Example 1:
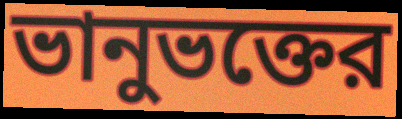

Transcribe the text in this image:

ভানুভক্তের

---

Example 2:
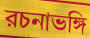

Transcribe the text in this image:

রচনাভঙ্গি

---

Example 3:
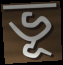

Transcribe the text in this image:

ভূ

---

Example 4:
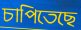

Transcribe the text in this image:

চাপিতেছে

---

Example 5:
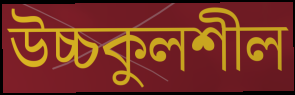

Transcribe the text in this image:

উচ্চকুলশীল